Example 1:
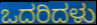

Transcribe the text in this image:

ಒದರಿದಳು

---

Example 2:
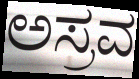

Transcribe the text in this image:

ಅಸ್ರವ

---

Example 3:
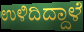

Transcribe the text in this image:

ಉಳಿದಿದ್ದಾಳೆ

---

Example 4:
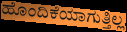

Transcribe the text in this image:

ಹೊಂದಿಕೆಯಾಗುತ್ತಿಲ್ಲ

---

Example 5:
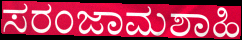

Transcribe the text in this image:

ಸರಂಜಾಮಶಾಹಿ